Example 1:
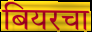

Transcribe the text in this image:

बियरचा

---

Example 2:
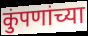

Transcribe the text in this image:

कुंपणांच्या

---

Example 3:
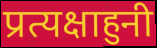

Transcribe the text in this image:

प्रत्यक्षाहुनी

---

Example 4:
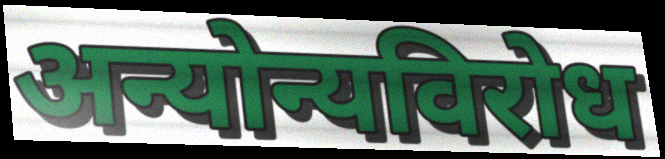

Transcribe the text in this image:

अन्योन्यविरोध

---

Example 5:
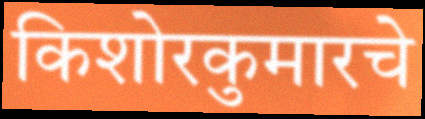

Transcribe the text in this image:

किशोरकुमारचे